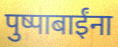
पुष्पाबाईंना